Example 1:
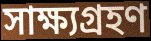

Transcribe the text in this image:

সাক্ষ্যগ্রহণ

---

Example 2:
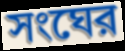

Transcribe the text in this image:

সংঘের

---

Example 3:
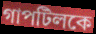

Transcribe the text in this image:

গাপটিলকে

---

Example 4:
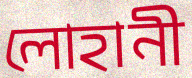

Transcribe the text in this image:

লোহানী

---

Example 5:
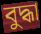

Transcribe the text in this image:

বুদ্ধা